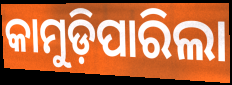
କାମୁଡ଼ିପାରିଲା